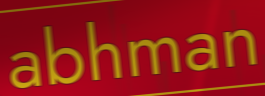
abhman